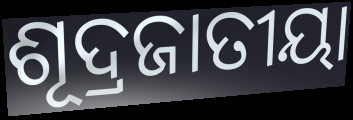
ଶୂଦ୍ରଜାତୀୟା